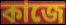
কাজে